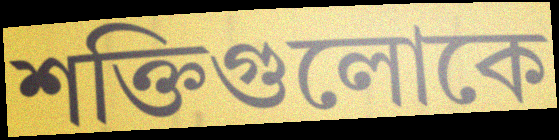
শক্তিগুলোকে